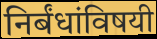
निर्बंधांविषयी